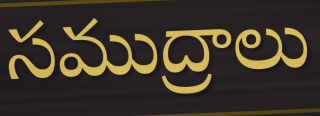
సముద్రాలు